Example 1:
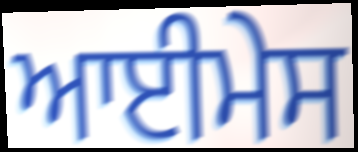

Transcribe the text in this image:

ਆਈਮੇਸ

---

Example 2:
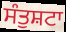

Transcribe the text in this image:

ਸੰਤੁਸ਼ਟਾ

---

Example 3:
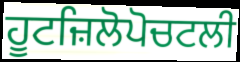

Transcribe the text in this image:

ਹੂਟਜ਼ਿਲੋਪੋਚਟਲੀ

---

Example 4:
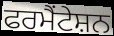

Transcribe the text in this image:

ਫਰਮੈਂਟੇਸ਼ਨ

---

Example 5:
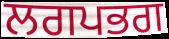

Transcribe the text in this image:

ਲਗਪਭਗ